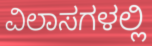
ವಿಲಾಸಗಳಲ್ಲಿ